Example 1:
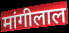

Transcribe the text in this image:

मांगीलाल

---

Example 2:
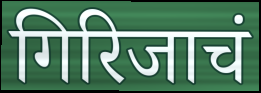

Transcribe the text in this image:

गिरिजाचं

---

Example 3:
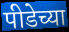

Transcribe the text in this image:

पीडेच्या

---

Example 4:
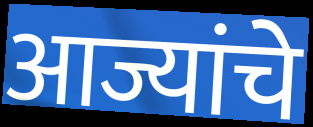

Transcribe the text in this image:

आज्यांचे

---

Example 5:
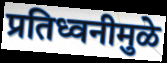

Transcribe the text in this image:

प्रतिध्वनीमुळे